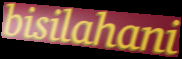
bisilahani